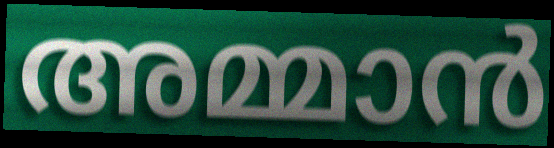
അമ്മാൻ